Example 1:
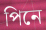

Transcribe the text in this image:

পিনে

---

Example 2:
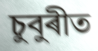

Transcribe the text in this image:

চুবুৰীত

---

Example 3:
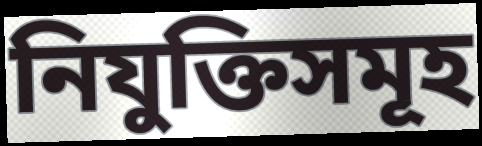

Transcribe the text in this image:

নিযুক্তিসমূহ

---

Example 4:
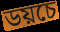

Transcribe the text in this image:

ডয়চে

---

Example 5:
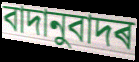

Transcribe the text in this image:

বাদানুবাদৰ